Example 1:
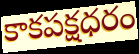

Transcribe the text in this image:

కాకపక్షధరం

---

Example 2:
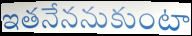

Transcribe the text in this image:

ఇతనేననుకుంటా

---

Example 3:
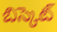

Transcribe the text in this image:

బిస్కెట్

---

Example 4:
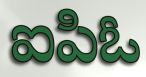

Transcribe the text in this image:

ఐపిఓ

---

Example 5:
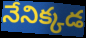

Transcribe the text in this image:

నేనిక్కడ